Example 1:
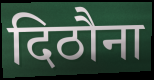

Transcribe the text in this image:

दिठौना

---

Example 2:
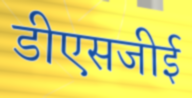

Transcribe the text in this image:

डीएसजीई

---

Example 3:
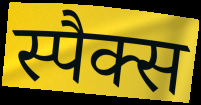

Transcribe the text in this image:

स्पैक्स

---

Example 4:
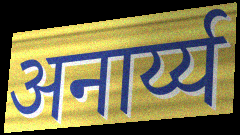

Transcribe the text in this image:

अनार्य्य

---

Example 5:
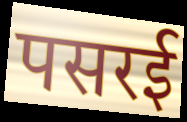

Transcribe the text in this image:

पसरई